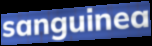
sanguinea